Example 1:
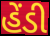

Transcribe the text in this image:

હેંડી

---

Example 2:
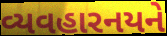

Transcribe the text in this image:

વ્યવહારનયને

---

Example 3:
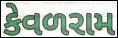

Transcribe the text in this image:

કેવળરામ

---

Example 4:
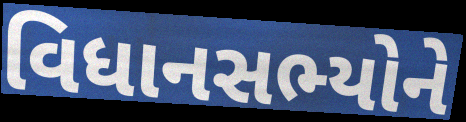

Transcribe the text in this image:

વિધાનસભ્યોને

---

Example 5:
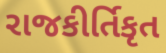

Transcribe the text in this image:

રાજકીર્તિકૃત